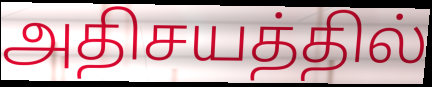
அதிசயத்தில்